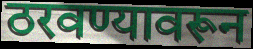
ठरवण्यावरून